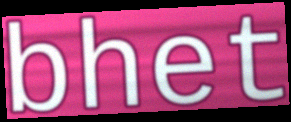
bhet